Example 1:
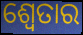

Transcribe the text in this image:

ଶ୍ୱେତାର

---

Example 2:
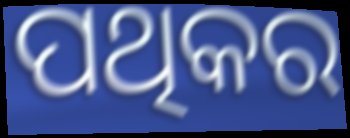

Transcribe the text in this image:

ପଥିକର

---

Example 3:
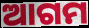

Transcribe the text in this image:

ଆଗମ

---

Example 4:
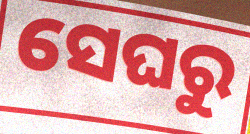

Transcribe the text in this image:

ସେଘରୁ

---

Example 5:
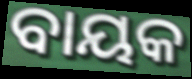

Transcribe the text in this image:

ବାୟକ